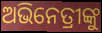
ଅଭିନେତ୍ରୀଙ୍କୁ